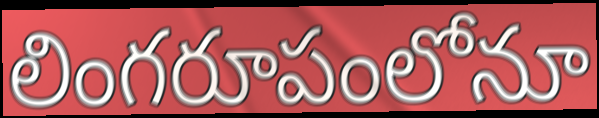
లింగరూపంలోనూ